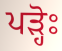
ਪੜ੍ਹੋਃ